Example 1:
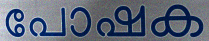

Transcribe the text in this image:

പോഷക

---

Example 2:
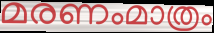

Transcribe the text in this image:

മരണംമാത്രം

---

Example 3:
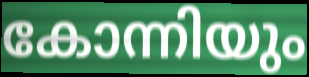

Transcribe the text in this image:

കോന്നിയും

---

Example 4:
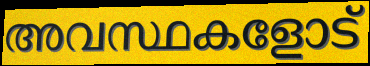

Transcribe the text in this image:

അവസ്ഥകളോട്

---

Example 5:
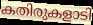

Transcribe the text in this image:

കതിരുകളാടി